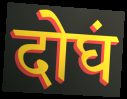
दोघं